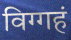
विग्गहं